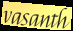
vasanth